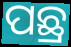
ପଛ୍ର